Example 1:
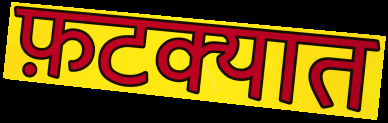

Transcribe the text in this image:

फ़टक्यात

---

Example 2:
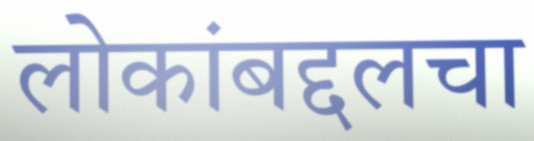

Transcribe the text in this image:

लोकांबद्दलचा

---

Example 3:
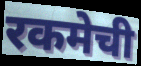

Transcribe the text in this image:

रकमेची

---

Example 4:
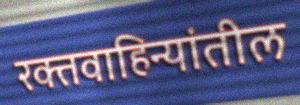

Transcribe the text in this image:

रक्तवाहिन्यांतील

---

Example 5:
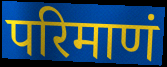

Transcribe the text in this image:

परिमाणं